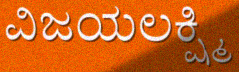
ವಿಜಯಲಕ್ಷ್ಮಿ